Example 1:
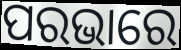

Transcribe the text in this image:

ପରଭାରେ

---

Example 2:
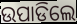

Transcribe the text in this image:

ଉପାଡିଲେ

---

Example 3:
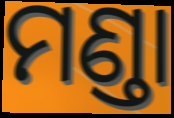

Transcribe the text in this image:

ମଣ୍ଡା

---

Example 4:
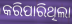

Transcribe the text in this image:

କରିପାରିଥିଲା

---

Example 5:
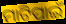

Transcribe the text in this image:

ମାଟିପାଇଁ